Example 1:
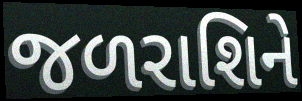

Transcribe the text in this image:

જળરાશિને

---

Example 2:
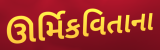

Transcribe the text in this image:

ઊર્મિકવિતાના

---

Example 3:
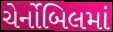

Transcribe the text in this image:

ચેર્નોબિલમાં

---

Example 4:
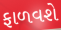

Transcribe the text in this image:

ફાળવશે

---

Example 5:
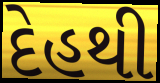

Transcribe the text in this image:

દેહથી